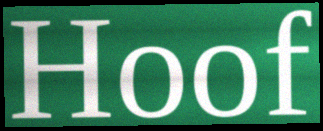
Hoof